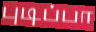
புடிப்பா